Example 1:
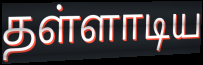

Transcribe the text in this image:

தள்ளாடிய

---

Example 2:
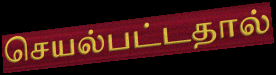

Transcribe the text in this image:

செயல்பட்டதால்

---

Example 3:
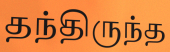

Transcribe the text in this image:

தந்திருந்த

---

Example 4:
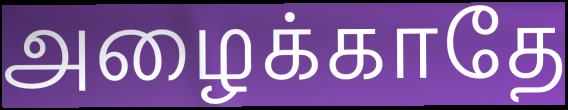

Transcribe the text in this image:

அழைக்காதே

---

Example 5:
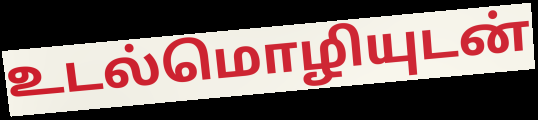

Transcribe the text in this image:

உடல்மொழியுடன்